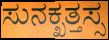
ಸುನಕ್ಖತ್ತಸ್ಸ